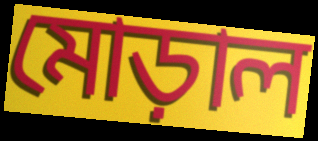
মোড়াল